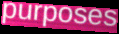
purposes